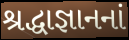
શ્રદ્ધાજ્ઞાનનાં